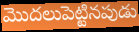
మొదలుపెట్టినపుడు